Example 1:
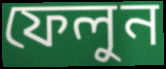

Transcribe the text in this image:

ফেলুন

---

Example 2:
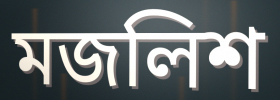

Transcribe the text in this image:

মজলিশ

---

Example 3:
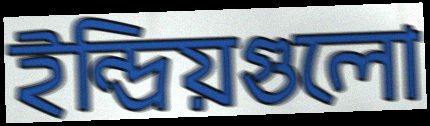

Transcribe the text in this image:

ইন্দ্রিয়গুলো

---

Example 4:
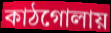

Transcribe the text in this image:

কাঠগোলায়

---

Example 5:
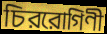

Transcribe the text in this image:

চিররোগিণী